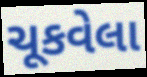
ચૂકવેલા